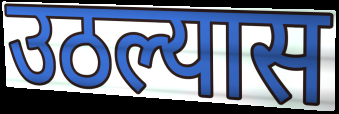
उठल्यास